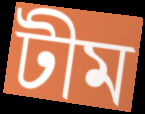
টীম